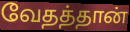
வேதத்தான்